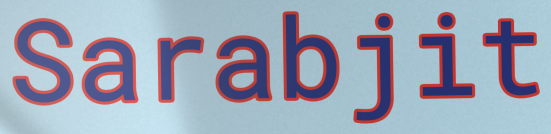
Sarabjit